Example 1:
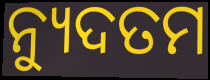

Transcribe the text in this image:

ନ୍ୟୁଦତମ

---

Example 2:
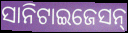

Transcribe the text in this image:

ସାନିଟାଇଜେସନ୍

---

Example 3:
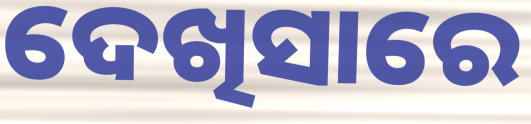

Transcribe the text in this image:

ଦେଖିସାରେ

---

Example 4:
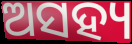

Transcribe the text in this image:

ଅସହ୍ୟ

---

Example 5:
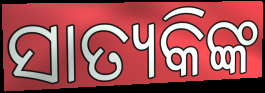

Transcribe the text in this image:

ସାତ୍ୟକିଙ୍କ